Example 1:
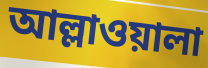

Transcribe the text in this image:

আল্লাওয়ালা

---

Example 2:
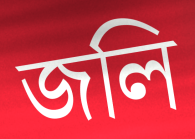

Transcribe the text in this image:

জলি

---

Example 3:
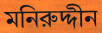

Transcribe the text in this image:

মনিরুদ্দীন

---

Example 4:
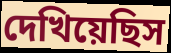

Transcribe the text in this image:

দেখিয়েছিস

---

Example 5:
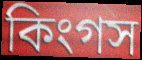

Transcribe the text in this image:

কিংগস